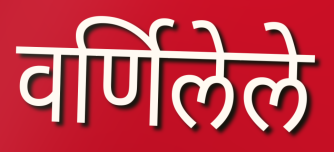
वर्णिलेले